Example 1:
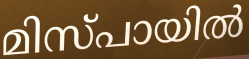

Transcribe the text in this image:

മിസ്പായിൽ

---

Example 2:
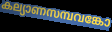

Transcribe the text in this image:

കല്യാണസമ്പവങ്കോ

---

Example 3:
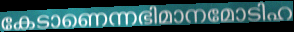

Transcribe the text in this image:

കേടാണെന്നഭിമാനമോടിഹ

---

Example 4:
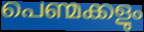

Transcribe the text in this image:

പെണ്മക്കളും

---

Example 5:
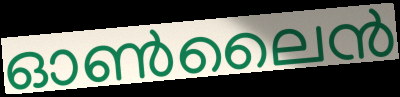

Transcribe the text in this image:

ഓൺലൈൻ